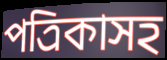
পত্রিকাসহ